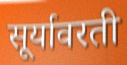
सूर्यावरती